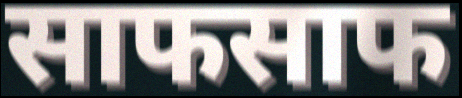
साफसाफ